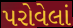
પરોવેલાં